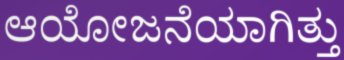
ಆಯೋಜನೆಯಾಗಿತ್ತು